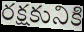
రక్షకునికి